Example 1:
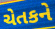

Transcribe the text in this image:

ચેતકને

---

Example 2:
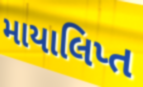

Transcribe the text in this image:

માયાલિપ્ત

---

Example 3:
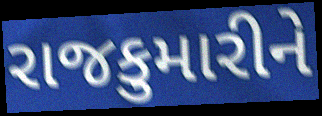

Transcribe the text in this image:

રાજકુમારીને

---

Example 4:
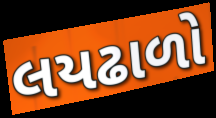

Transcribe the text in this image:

લયઢાળો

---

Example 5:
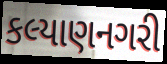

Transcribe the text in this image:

કલ્યાણનગરી